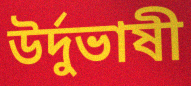
উর্দুভাষী